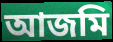
আজমি